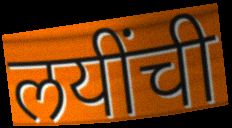
लयींची